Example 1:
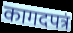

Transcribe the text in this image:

कागदपत्रं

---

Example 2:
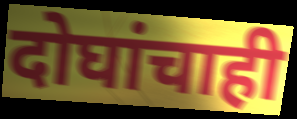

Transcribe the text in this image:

दोघांचाही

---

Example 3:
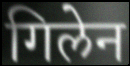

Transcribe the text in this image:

गिलेन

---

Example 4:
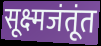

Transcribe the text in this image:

सूक्ष्मजंतूंत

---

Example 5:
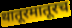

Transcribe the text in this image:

थातूरमातूरच